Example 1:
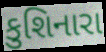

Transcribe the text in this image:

કુશિનારા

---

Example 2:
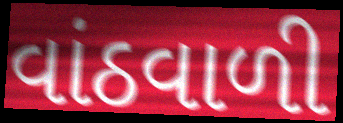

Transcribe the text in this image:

વાંઠવાળી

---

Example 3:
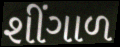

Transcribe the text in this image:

શીંગાળ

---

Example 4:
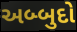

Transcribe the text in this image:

અબ્બુદો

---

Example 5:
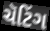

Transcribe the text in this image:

ચૅટિંગ